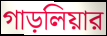
গাড়লিয়ার